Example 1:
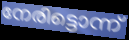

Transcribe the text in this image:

നേരിട്ടൊന്ന്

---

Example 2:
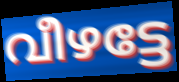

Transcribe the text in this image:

വീഴട്ടേ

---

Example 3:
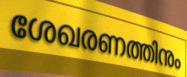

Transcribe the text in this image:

ശേഖരണത്തിനും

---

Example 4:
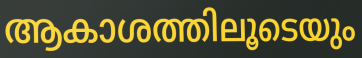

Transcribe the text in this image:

ആകാശത്തിലൂടെയും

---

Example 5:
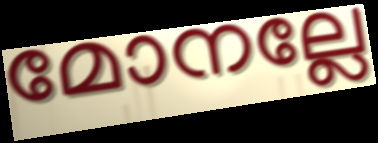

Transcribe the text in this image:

മോനല്ലേ